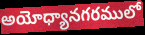
అయోధ్యానగరములో